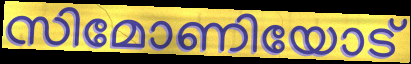
സിമോണിയോട്